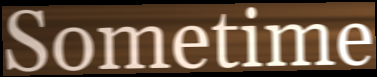
Sometime